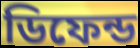
ডিফেন্ড